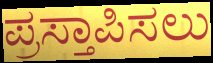
ಪ್ರಸ್ತಾಪಿಸಲು